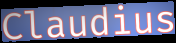
Claudius